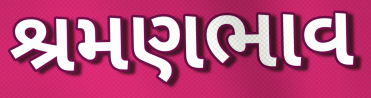
શ્રમણભાવ